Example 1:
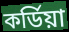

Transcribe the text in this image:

কর্ডিয়া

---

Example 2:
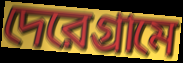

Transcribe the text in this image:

দেরেগ্রামে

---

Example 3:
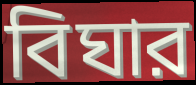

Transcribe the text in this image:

বিঘার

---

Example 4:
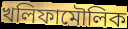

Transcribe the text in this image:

খলিফামৌলিক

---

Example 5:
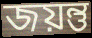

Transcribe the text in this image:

জয়ন্তু